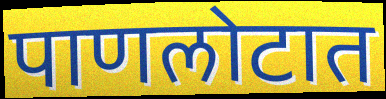
पाणलोटात